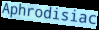
Aphrodisiac